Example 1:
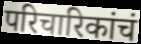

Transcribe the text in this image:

परिचारिकांचं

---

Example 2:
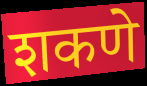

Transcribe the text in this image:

शकणे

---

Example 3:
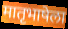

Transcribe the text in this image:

मातृभाषेला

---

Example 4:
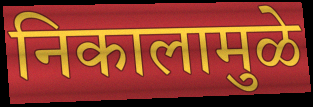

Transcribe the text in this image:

निकालामुळे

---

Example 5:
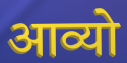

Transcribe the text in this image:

आव्यो